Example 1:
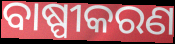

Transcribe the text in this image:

ବାଷ୍ପୀକରଣ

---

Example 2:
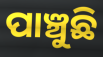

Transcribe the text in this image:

ପାଞ୍ଚୁଛି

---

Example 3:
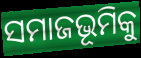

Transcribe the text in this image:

ସମାଜଭୂମିକୁ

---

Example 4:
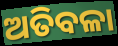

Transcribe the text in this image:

ଅତିବଳା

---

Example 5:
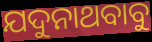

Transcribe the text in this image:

ଯଦୁନାଥବାବୁ